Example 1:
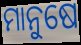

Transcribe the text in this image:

ମାନୁଷେ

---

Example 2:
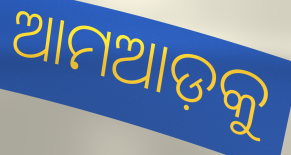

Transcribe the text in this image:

ଆମଆଡ଼କୁ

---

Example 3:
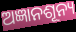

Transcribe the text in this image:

ଅଜ୍ଞାନଶୂନ୍ୟ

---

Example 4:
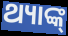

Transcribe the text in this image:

ଥ୍ୟାଙ୍କ୍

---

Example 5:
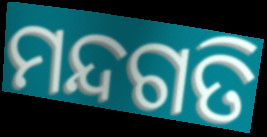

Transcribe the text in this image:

ମନ୍ଦଗତି